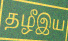
தழீஇய